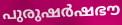
പുരുഷർഷഭൗ